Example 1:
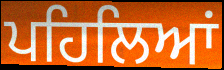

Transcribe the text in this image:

ਪਹਿਲਿਆਂ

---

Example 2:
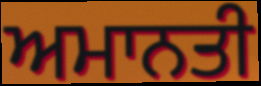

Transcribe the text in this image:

ਅਮਾਨਤੀ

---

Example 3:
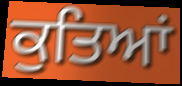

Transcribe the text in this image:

ਕੁਤਿਆਂ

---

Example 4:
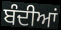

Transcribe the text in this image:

ਬੰਦੀਆਂ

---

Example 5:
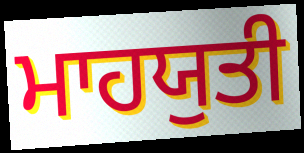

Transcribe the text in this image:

ਮਾਹਯੁਤੀ